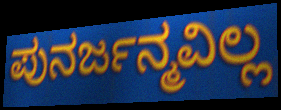
ಪುನರ್ಜನ್ಮವಿಲ್ಲ